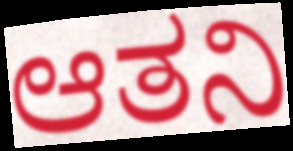
ಆತನಿ